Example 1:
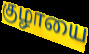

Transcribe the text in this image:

குழாயை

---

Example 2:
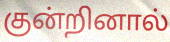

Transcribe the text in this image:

குன்றினால்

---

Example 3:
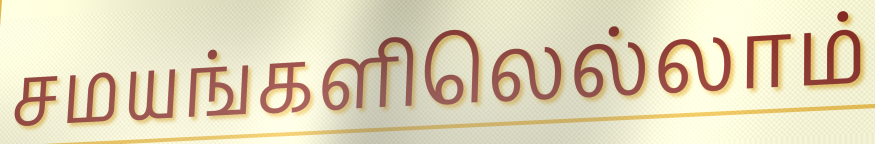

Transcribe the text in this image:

சமயங்களிலெல்லாம்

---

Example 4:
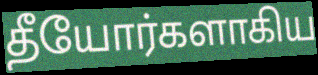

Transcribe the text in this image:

தீயோர்களாகிய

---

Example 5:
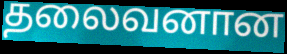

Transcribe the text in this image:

தலைவனான